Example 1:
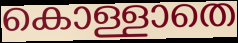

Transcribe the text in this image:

കൊള്ളാതെ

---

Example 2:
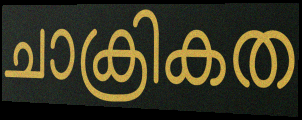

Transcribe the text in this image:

ചാക്രികത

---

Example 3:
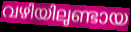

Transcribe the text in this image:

വഴിയിലുണ്ടായ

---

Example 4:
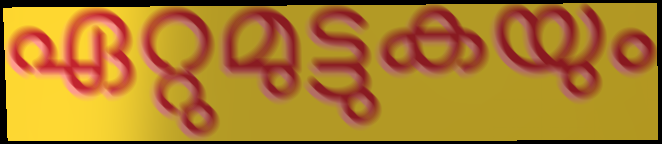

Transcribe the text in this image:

ഏറ്റുമുട്ടുകയും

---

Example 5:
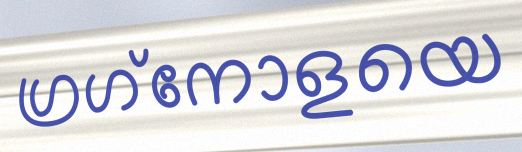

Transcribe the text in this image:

ഗ്രഗ്‌നോളയെ